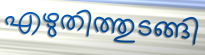
എഴുതിത്തുടങ്ങി